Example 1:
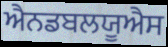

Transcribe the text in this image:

ਐਨਡਬਲਯੂਐਸ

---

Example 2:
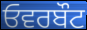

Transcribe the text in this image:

ਓਵਰਬੌਟ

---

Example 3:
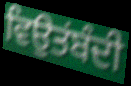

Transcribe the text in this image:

ਵਿਉਤਂਬੰਦੀ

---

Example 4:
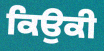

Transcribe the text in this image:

ਕਿਉਕੀ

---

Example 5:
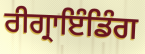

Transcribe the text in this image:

ਰੀਗ੍ਰਾਇੰਡਿੰਗ